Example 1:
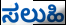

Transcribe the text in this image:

ಸಲುಹಿ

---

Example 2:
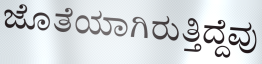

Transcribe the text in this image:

ಜೊತೆಯಾಗಿರುತ್ತಿದ್ದೆವು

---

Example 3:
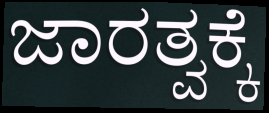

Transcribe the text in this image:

ಜಾರತ್ವಕ್ಕೆ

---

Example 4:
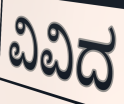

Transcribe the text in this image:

ವಿವಿದ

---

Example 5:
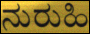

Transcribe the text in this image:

ನುರುಹಿ